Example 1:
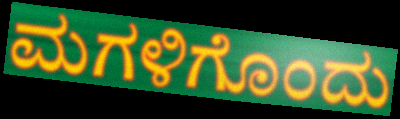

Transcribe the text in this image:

ಮಗಳಿಗೊಂದು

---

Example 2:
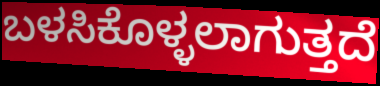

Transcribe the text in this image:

ಬಳಸಿಕೊಳ್ಳಲಾಗುತ್ತದೆ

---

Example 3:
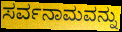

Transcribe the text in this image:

ಸರ್ವನಾಮವನ್ನು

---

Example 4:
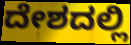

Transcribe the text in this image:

ದೇಶದಲ್ಲಿ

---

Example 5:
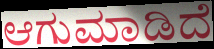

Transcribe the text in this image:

ಆಗುಮಾಡಿದೆ